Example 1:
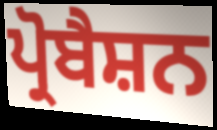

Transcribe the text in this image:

ਪ੍ਰੋਬੈਸ਼ਨ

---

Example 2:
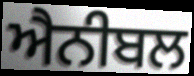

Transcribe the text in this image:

ਐਨੀਬਲ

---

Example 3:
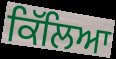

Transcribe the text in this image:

ਕਿੱਲਿਆ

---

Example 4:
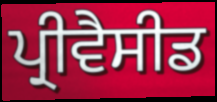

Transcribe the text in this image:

ਪ੍ਰੀਵੈਸੀਡ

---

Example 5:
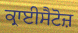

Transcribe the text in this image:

ਕ੍ਰਾਈਸੈਟੋਜ਼